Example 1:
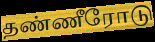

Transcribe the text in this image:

தண்ணீரோடு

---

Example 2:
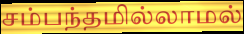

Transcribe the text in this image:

சம்பந்தமில்லாமல்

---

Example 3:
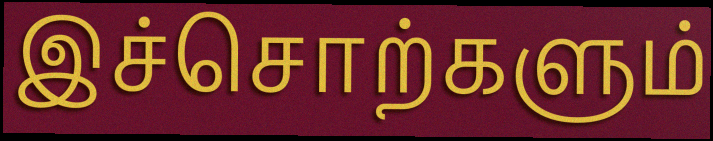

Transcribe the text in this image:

இச்சொற்களும்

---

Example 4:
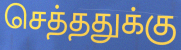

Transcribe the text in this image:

செத்ததுக்கு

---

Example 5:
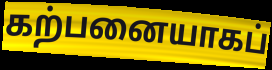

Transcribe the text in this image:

கற்பனையாகப்